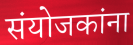
संयोजकांना